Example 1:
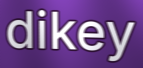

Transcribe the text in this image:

dikey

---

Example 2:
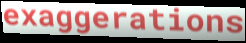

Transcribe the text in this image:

exaggerations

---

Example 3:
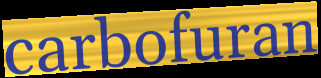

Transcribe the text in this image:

carbofuran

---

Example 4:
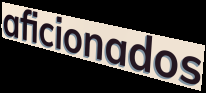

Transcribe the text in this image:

aficionados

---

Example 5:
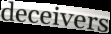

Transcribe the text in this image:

deceivers